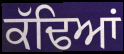
ਕੱਢਿਆਂ